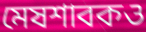
মেষশাবকও